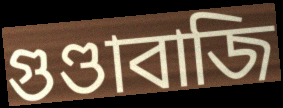
গুণ্ডাবাজি